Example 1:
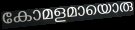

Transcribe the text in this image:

കോമളമായൊരു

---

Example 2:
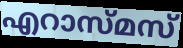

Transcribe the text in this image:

എറാസ്മസ്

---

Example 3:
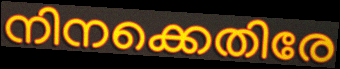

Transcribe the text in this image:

നിനക്കെതിരേ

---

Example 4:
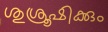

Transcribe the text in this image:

ശുശ്രൂഷിക്കും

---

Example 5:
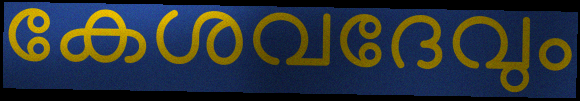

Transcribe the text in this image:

കേശവദേവും